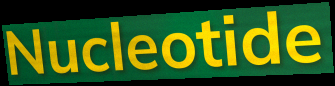
Nucleotide